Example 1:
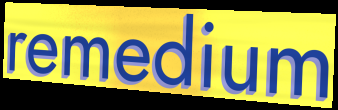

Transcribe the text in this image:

remedium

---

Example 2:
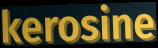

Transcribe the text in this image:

kerosine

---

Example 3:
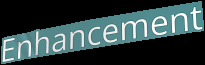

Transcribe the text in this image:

Enhancement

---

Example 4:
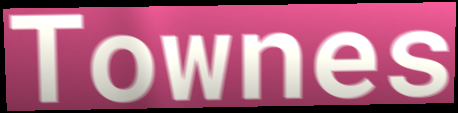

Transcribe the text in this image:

Townes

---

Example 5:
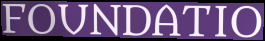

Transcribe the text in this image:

FOUNDATIO